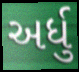
અર્ધુ